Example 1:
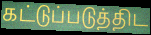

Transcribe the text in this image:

கட்டுப்படுத்திட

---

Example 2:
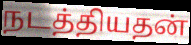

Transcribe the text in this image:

நடத்தியதன்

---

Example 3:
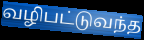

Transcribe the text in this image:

வழிபட்டுவந்த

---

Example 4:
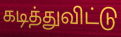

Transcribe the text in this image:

கடித்துவிட்டு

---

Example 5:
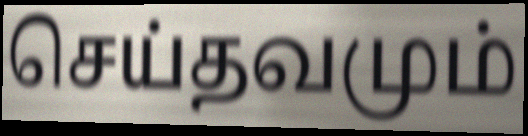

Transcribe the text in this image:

செய்தவமும்